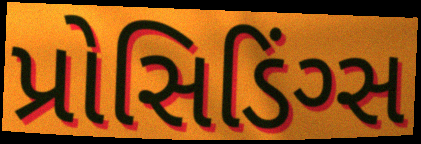
પ્રોસિડિંગ્સ